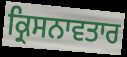
ਕ੍ਰਿਸਨਾਵਤਾਰ